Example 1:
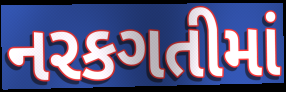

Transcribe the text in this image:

નરકગતીમાં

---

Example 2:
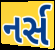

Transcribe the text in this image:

નર્સ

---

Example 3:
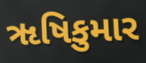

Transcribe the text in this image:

ૠષિકુમાર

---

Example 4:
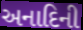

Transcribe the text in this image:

અનાદિની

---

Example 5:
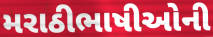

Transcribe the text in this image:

મરાઠીભાષીઓની